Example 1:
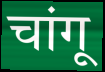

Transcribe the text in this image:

चांगू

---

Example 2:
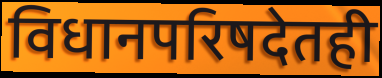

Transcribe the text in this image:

विधानपरिषदेतही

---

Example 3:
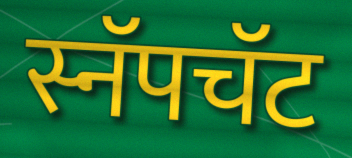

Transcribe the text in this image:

स्नॅपचॅट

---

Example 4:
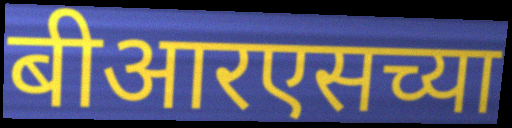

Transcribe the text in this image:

बीआरएसच्या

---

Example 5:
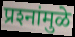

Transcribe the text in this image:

प्रश्‍नांमुळे